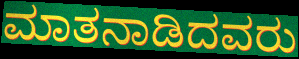
ಮಾತನಾಡಿದವರು